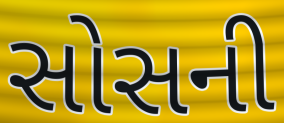
સોસની